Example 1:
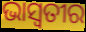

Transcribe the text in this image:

ଭାସ୍ଵତୀର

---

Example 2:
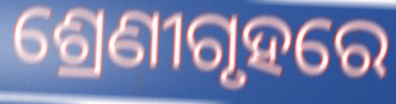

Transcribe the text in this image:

ଶ୍ରେଣୀଗୃହରେ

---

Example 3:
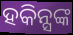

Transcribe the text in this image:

ହକିନ୍ସଙ୍କ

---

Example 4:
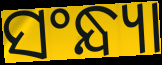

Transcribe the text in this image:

ସଂନ୍ଧ୍ଯା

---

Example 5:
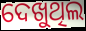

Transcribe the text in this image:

ଦେଖୁଥିଲ